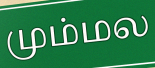
மும்மல